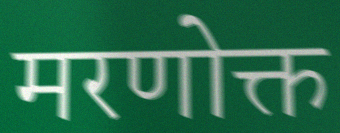
मरणोक्त